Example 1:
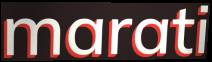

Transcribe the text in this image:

marati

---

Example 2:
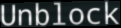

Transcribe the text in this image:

Unblock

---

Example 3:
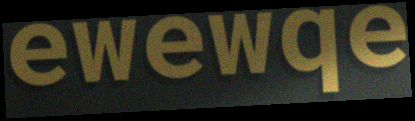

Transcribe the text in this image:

ewewqe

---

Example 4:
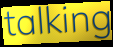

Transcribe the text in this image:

talking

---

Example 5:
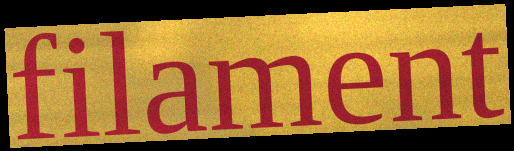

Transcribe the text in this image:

filament